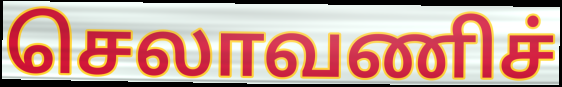
செலாவணிச்